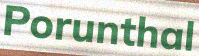
Porunthal